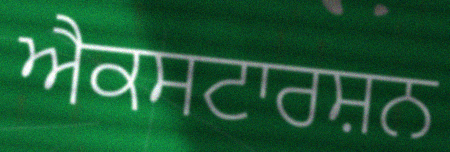
ਐਕਸਟਾਰਸ਼ਨ